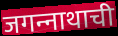
जगन्नाथाची